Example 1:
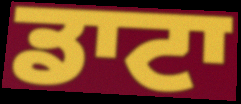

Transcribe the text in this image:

ਡਾਟਾ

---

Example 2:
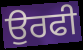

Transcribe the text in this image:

ਉਰਫੀ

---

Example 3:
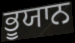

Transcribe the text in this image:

ਭੂਯਾਨ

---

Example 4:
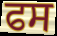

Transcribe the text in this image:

ਫਸ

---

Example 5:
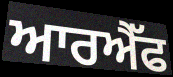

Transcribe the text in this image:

ਆਰਐੱਫ